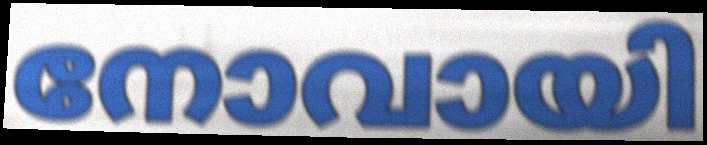
നോവായി